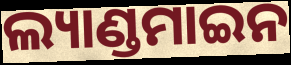
ଲ୍ୟାଣ୍ଡମାଇନ